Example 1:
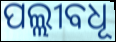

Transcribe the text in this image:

ପଲ୍ଲୀବଧୂ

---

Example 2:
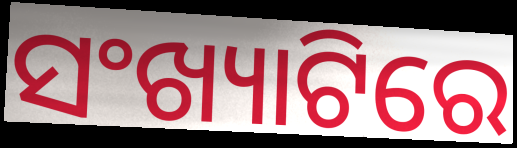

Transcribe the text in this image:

ସଂଖ୍ୟାଟିରେ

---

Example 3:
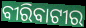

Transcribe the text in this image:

ବୀରିବାଟୀର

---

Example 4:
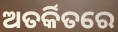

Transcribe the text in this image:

ଅତର୍କିତରେ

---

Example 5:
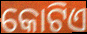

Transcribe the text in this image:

କୋଟିଏ